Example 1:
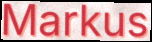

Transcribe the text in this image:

Markus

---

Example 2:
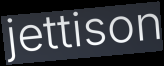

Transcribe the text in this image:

jettison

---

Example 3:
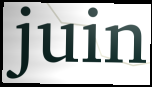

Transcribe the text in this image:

juin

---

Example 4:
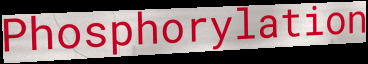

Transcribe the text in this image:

Phosphorylation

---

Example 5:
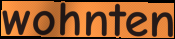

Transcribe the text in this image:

wohnten